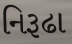
નિરૂઢા